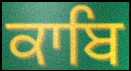
ਕਾਬਿ